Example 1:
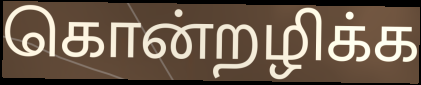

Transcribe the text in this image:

கொன்றழிக்க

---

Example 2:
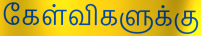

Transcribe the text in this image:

கேள்விகளுக்கு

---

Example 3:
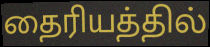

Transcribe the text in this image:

தைரியத்தில்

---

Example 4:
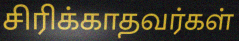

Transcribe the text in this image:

சிரிக்காதவர்கள்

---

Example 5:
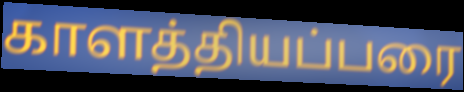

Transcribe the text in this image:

காளத்தியப்பரை